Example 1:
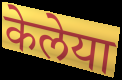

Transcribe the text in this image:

केलेया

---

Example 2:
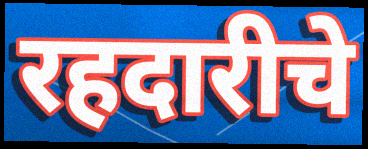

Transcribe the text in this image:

रहदारीचे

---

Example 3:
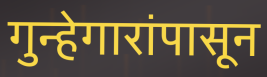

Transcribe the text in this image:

गुन्हेगारांपासून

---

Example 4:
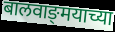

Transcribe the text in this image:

बालवाङ्‌मयाच्या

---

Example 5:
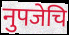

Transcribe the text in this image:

नुपजेचि